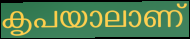
കൃപയാലാണ്